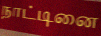
நாட்டினை